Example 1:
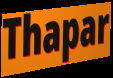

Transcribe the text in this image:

Thapar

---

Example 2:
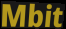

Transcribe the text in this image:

Mbit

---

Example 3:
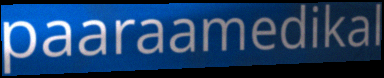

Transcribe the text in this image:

paaraamedikal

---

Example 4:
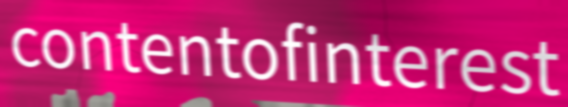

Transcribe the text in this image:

contentofinterest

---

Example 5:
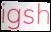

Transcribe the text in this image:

igsh